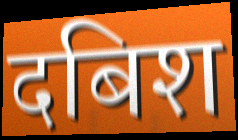
दबिश